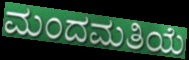
ಮಂದಮತಿಯೆ